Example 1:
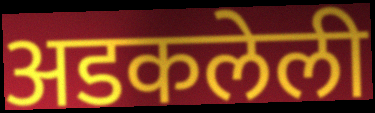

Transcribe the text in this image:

अडकलेली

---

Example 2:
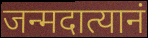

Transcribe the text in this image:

जन्मदात्यानं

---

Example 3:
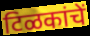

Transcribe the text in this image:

टिळकांचें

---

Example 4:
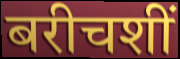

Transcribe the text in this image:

बरीचशीं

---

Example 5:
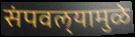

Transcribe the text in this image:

संपवल्यामुळे